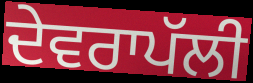
ਦੇਵਰਾਪੱਲੀ